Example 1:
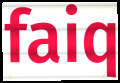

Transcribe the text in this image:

faiq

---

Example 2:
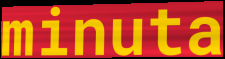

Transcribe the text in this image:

minuta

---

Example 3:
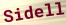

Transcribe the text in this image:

Sidell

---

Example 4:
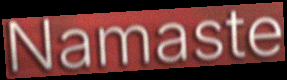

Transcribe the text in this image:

Namaste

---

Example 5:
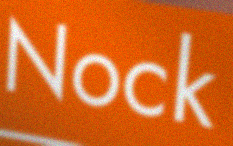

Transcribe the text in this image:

Nock